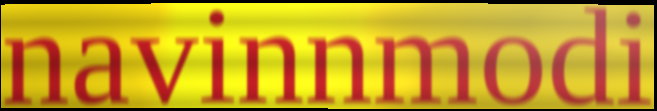
navinnmodi